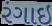
રંગાઇ